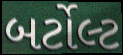
બર્ટોલ્ટ